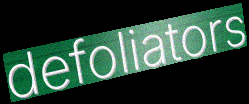
defoliators